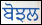
ਬੋਝਲ